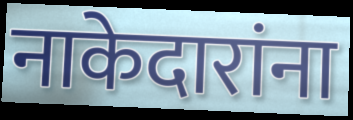
नाकेदारांना